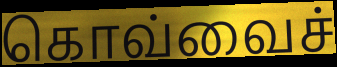
கொவ்வைச்